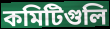
কমিটিগুলি